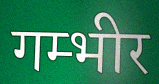
गम्भीर